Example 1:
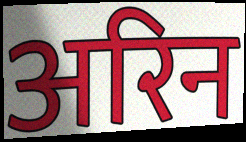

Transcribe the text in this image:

अरिन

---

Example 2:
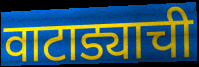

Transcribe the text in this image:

वाटाड्याची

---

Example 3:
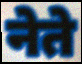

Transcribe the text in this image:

नेते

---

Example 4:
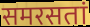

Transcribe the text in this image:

समरसतां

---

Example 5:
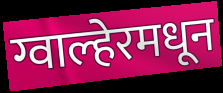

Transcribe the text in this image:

ग्वाल्हेरमधून